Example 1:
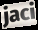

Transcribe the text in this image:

jaci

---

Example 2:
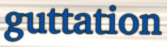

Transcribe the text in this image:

guttation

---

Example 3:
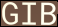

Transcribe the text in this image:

GIB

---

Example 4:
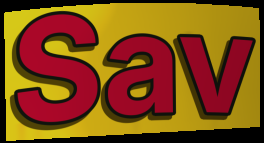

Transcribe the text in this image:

Sav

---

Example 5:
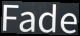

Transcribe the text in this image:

Fade